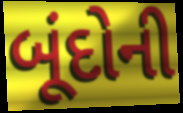
બૂંદોની